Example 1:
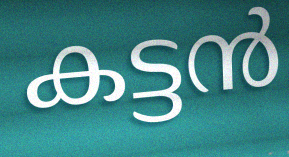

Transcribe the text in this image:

കട്ടൻ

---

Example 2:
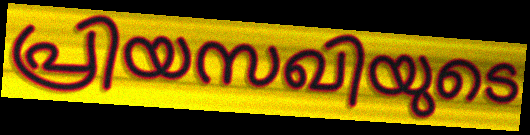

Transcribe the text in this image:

പ്രിയസഖിയുടെ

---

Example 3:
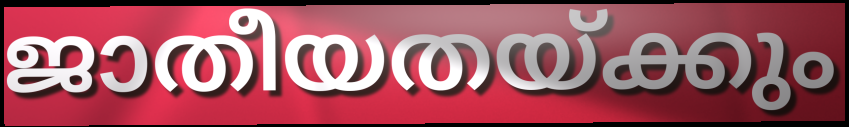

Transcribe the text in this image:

ജാതീയതയ്ക്കും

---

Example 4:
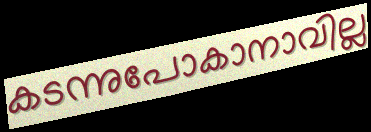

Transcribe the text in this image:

കടന്നുപോകാനാവില്ല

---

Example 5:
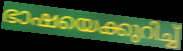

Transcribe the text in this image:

ഭാഷയെക്കുറിച്ച്